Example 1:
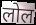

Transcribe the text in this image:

लोल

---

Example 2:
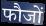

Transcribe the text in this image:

फौजों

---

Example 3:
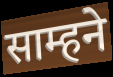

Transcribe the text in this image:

साम्हने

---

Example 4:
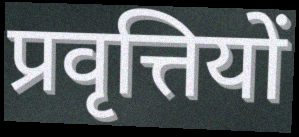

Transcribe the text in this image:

प्रवृत्तियों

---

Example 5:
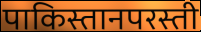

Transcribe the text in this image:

पाकिस्तानपरस्ती